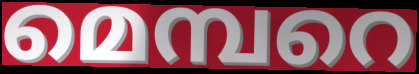
മെമ്പറെ